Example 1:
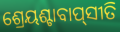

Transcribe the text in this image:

ଶ୍ରେୟଶ୍ଚାବାପ୍‌ସୀତି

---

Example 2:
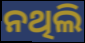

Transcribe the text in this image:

ନଥିଲି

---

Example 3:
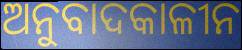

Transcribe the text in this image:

ଅନୁବାଦକାଳୀନ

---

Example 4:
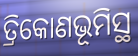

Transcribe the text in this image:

ତ୍ରିକୋଣଭୂମିସ୍ଥ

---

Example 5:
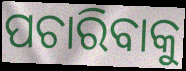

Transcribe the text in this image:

ପଚାରିବାକୁ